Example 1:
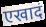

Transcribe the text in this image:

एखादं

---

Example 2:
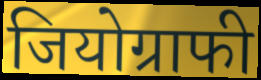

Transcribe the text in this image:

जियोग्राफी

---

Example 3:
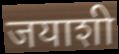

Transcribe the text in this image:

जयाशी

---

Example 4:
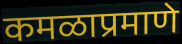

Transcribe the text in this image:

कमळाप्रमाणे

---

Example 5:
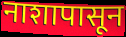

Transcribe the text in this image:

नाशापासून